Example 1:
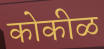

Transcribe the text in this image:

कोकीळ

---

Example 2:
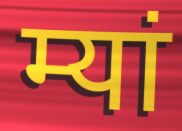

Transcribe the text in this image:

म्यां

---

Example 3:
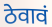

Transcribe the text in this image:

ठेवावं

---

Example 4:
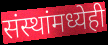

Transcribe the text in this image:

संस्थांमध्येही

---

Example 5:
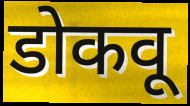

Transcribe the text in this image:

डोकवू